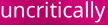
uncritically